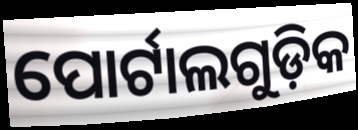
ପୋର୍ଟାଲଗୁଡ଼ିକ